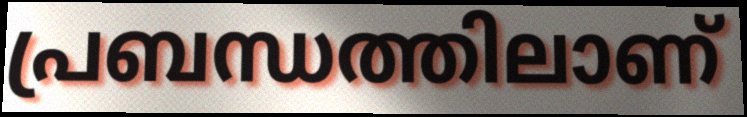
പ്രബന്ധത്തിലാണ്